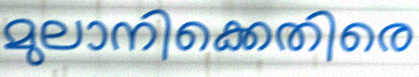
മുലാനിക്കെതിരെ